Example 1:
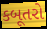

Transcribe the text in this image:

કબૂતરો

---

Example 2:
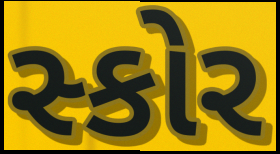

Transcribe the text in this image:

સ્કોર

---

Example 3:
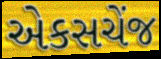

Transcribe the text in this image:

એકસચેંજ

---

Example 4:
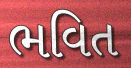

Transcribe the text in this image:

ભવિત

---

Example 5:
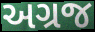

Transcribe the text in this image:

અગ્રજ